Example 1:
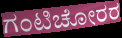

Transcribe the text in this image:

ಗಂಟಿಚೋರರ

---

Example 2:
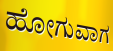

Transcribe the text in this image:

ಹೋಗುವಾಗ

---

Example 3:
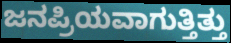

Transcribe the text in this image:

ಜನಪ್ರಿಯವಾಗುತ್ತಿತ್ತು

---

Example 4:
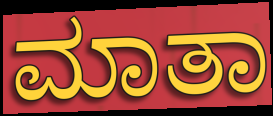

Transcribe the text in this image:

ಮಾತಾ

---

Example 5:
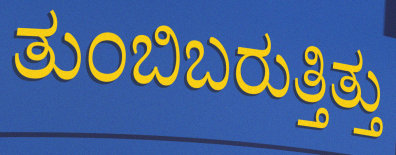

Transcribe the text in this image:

ತುಂಬಿಬರುತ್ತಿತ್ತು